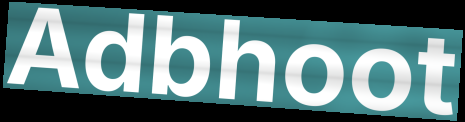
Adbhoot